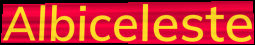
Albiceleste